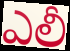
ఎలీ